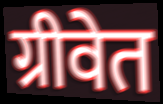
ग्रीवेत